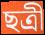
ছত্রী